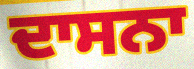
ਦਾਸਨਾ